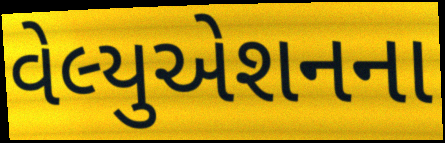
વેલ્યુએશનના